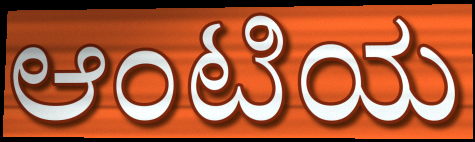
ಆಂಟಿಯ